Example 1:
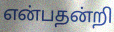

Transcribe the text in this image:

என்பதன்றி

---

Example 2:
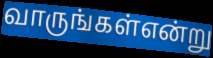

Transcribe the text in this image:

வாருங்கள்என்று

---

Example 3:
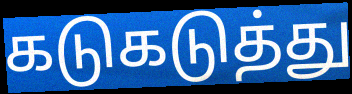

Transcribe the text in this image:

கடுகடுத்து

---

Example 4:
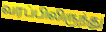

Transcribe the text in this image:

வரப்பிலிருந்து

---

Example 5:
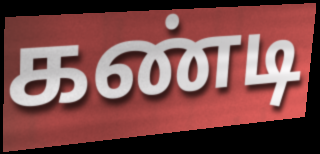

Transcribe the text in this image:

கண்டி